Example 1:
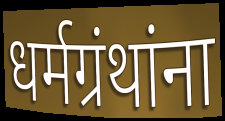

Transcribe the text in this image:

धर्मग्रंथांना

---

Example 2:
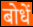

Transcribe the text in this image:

बोधें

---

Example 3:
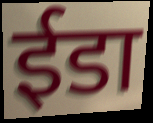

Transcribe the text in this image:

ईडा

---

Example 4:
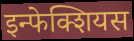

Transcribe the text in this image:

इन्फेक्शियस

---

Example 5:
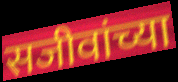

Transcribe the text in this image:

सजीवांच्या